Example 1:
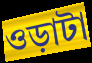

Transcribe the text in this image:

ওড়াটা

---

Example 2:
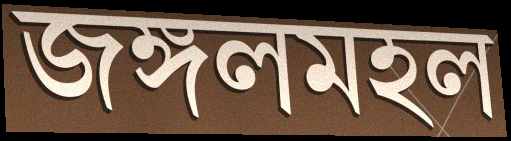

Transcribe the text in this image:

জঙ্গলমহল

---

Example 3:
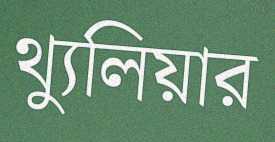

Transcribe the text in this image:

থ্যুলিয়ার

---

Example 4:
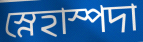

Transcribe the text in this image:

স্নেহাস্পদা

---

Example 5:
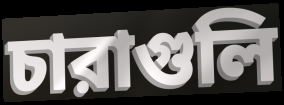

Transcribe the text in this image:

চারাগুলি